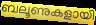
ബലൂണുകളായി